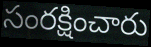
సంరక్షించారు